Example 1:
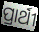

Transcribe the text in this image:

ପ୍ରାର୍ଥୀ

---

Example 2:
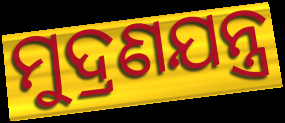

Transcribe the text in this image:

ମୁଦ୍ରଣଯନ୍ତ୍ର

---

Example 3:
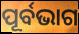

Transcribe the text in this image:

ପୂର୍ବଭାଗ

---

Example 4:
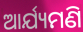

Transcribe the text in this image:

ଆର୍ଯ୍ୟମଣି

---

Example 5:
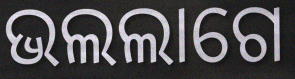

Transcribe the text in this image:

ଭଲଲାଗେ